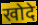
खोदे